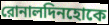
রোনালদিনহোকে